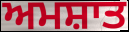
ਅਮਸ਼ਾਤ